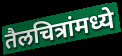
तैलचित्रांमध्ये